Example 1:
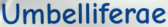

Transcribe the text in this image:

Umbelliferae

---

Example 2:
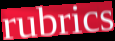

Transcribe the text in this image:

rubrics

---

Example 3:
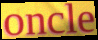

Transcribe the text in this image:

oncle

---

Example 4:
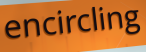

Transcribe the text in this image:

encircling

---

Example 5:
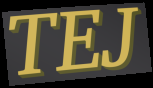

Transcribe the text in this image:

TEJ